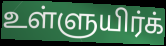
உள்ளுயிர்க்